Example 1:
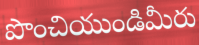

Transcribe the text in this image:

పొంచియుండిమీరు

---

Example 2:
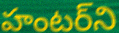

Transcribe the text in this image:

హంటర్‌ని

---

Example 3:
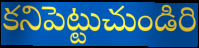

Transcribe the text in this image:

కనిపెట్టుచుండిరి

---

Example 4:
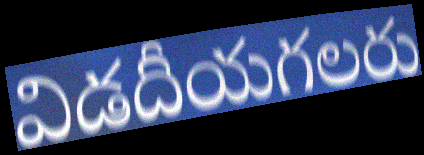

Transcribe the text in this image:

విడదీయగలరు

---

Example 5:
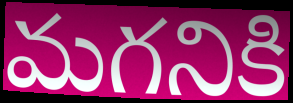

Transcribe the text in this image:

మగనికి